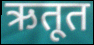
ऋतूत